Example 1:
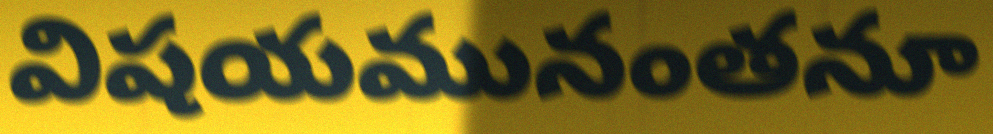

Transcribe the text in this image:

విషయమునంతనూ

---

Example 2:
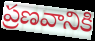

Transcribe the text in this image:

ప్రణవానికి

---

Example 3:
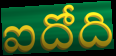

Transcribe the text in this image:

ఐదోది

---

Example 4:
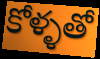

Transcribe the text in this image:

కోళ్ళతో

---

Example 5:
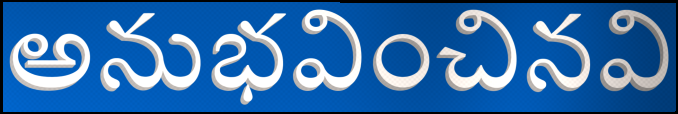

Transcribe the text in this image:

అనుభవించినవి